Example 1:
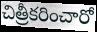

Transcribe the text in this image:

చిత్రీకరించారో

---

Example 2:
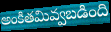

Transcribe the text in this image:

అంకితమివ్వబడింది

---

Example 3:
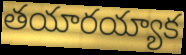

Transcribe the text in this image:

తయారయ్యాక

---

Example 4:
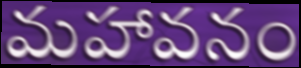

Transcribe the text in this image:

మహావనం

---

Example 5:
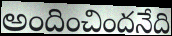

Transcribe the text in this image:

అందించిందనేది